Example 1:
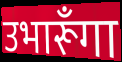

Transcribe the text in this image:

उभारूँगा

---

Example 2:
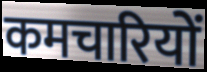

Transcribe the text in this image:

कमचारियों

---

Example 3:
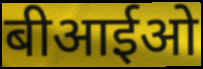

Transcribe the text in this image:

बीआईओ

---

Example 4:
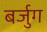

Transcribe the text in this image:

बर्जुग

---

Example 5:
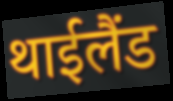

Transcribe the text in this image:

थाईलैंड